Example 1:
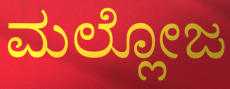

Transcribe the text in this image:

ಮಲ್ಲೋಜ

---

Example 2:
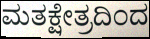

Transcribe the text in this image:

ಮತಕ್ಷೇತ್ರದಿಂದ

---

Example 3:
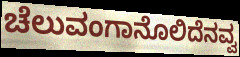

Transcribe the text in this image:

ಚೆಲುವಂಗಾನೊಲಿದೆನವ್ವ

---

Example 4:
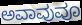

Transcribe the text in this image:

ಅವಾವುವೂ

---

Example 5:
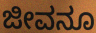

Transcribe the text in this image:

ಜೀವನೂ